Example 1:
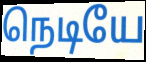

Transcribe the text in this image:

நெடியே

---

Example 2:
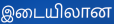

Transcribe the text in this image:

இடையிலான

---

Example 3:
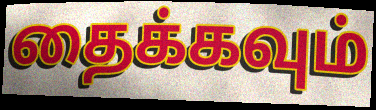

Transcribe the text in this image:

தைக்கவும்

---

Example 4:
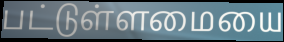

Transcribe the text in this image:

பட்டுள்ளமையை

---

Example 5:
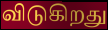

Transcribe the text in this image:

விடுகிறது